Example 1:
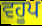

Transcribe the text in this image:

ਵਹੂਪ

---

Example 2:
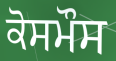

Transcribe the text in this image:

ਕੋਸਮੌਸ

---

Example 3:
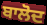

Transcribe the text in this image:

ਬਾਲੋਦ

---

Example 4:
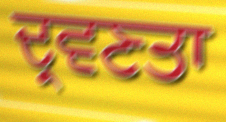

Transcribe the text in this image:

ਦ੍ਰਵਣਤਾ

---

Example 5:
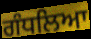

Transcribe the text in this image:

ਗੰਧਲਿਆ